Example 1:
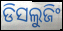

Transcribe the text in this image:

ଡିସଲୁଜିଂ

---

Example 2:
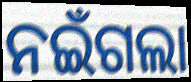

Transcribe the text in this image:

ନଇଁଗଲା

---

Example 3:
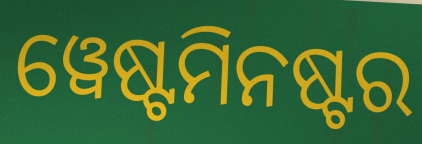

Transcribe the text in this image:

ୱେଷ୍ଟମିନଷ୍ଟର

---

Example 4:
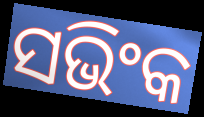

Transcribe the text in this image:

ସଭିଂକ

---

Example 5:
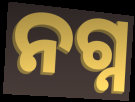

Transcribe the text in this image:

ନଗ୍ନ